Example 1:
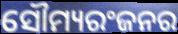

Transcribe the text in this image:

ସୌମ୍ୟରଂଜନର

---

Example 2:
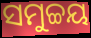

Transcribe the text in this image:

ସମୁଚ୍ଚୟ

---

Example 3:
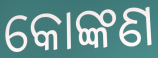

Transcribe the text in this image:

କୋଙ୍କଣ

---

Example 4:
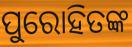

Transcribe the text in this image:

ପୁରୋହିତଙ୍କ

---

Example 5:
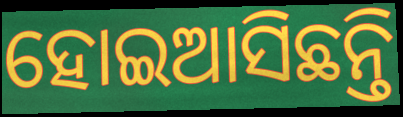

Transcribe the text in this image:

ହୋଇଆସିଛନ୍ତି